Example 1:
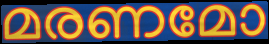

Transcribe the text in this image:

മരണമോ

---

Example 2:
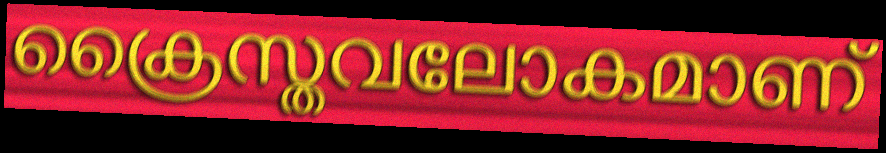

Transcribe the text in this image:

ക്രൈസ്തവലോകമാണ്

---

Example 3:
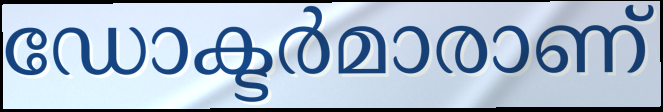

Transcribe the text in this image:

ഡോക്ടർമാരാണ്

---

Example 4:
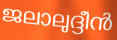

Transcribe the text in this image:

ജലാലുദ്ദീൻ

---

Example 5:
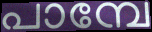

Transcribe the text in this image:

പാമ്പേ